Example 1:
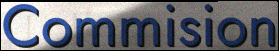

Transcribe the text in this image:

Commision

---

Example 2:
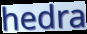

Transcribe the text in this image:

hedra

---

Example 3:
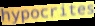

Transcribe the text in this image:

hypocrites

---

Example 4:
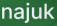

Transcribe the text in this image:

najuk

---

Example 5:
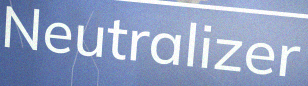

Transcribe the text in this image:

Neutralizer